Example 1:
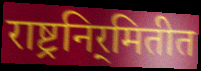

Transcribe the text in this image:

राष्ट्रनिर्मितीत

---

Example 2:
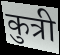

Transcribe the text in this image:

कुत्री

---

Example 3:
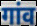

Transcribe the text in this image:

गांव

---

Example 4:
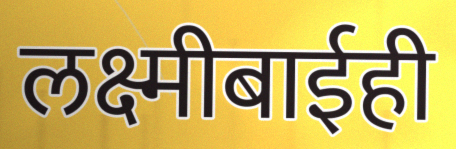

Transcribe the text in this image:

लक्ष्मीबाईही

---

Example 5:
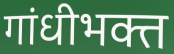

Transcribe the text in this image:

गांधीभक्त